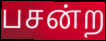
பசன்ற